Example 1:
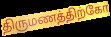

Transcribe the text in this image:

திருமணத்திற்கோ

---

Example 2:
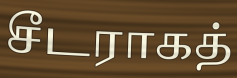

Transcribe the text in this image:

சீடராகத்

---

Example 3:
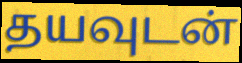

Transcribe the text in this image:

தயவுடன்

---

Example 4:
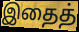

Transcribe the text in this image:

இதைத்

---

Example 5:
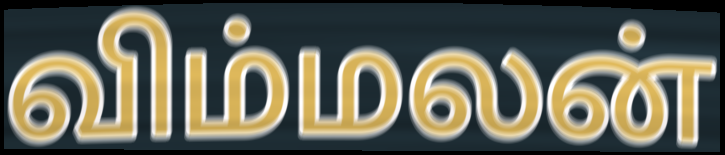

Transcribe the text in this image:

விம்மலன்